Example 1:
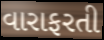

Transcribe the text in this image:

વારાફરતી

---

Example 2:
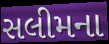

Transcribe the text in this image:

સલીમના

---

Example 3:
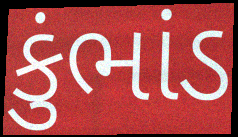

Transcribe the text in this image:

કુંભાંડ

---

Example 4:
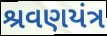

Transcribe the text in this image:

શ્રવણયંત્ર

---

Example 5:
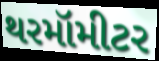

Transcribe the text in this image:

થરમૉમીટર